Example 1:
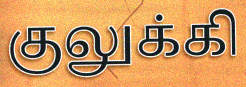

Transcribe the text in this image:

குலுக்கி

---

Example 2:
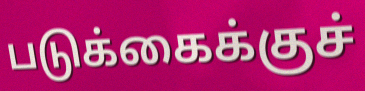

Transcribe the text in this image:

படுக்கைக்குச்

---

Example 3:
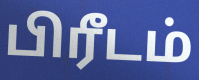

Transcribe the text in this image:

பிரீடம்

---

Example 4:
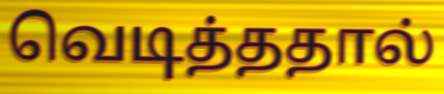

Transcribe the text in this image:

வெடித்ததால்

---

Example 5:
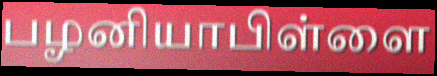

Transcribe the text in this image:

பழனியாபிள்ளை